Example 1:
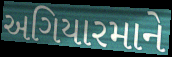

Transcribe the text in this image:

અગિયારમાને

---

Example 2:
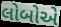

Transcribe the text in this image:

લોબોએ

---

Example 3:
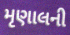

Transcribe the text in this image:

મૃણાલની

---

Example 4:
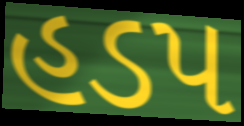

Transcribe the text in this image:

હડપ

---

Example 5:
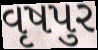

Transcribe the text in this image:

વૃષપુર